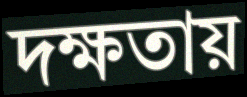
দক্ষতায়